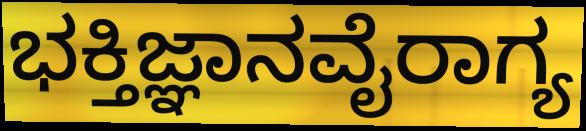
ಭಕ್ತಿಜ್ಞಾನವೈರಾಗ್ಯ